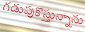
గడుపుకొస్తున్నాను